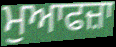
ਮੁਆਫਜ਼ਾ